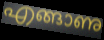
എങ്ങാണു